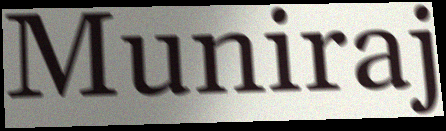
Muniraj